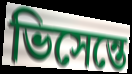
ভিসেন্তে